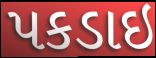
પકડાઇ